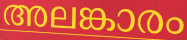
അലങ്കാരം